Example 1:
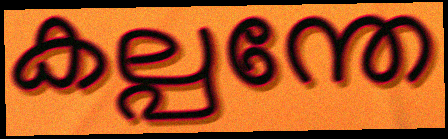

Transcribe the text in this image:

കല്പന്തേ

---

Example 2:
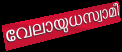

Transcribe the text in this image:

വേലായുധസ്വാമീ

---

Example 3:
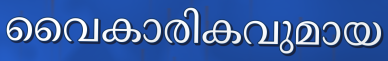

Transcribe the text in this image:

വൈകാരികവുമായ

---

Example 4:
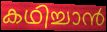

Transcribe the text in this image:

കഥിച്ചാൻ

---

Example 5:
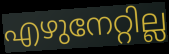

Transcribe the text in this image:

എഴുനേറ്റില്ല